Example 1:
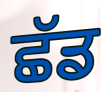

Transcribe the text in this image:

ਛੱਡ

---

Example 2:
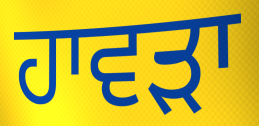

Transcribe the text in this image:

ਹਾਵਡ਼ਾ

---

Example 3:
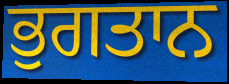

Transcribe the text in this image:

ਭੁਗਤਾਨ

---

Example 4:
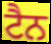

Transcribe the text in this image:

ਟੈਨ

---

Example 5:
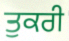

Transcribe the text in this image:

ਤੁਕਰੀ